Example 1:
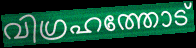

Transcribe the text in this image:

വിഗ്രഹത്തോട്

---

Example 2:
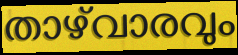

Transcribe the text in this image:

താഴ്‌വാരവും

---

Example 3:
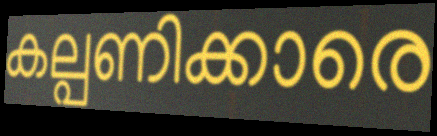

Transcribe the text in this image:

കല്പണിക്കാരെ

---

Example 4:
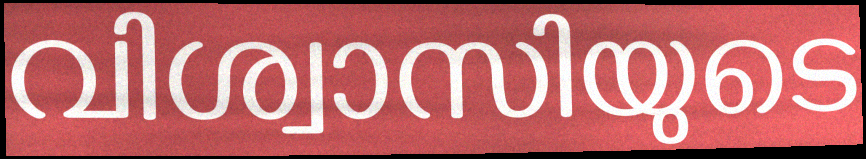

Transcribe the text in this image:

വിശ്വാസിയുടെ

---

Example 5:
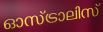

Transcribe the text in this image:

ഓസ്ട്രാലിസ്